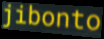
jibonto